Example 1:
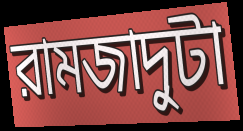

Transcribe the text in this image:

রামজাদুটা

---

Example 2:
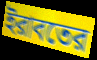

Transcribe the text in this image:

ইরাবতের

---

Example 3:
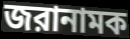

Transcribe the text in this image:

জরানামক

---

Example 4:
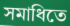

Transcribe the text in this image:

সমাধিতে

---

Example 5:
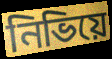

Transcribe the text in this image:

নিভিয়ে